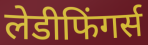
लेडीफिंगर्स